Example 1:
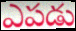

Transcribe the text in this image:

ఎపడు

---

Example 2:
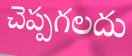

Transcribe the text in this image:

చెప్పగలదు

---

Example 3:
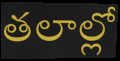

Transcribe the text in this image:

తలాల్లో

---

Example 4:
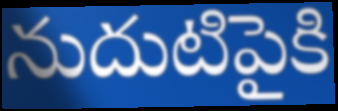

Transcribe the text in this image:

నుదుటిపైకి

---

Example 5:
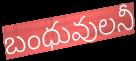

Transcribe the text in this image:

బంధువులనీ